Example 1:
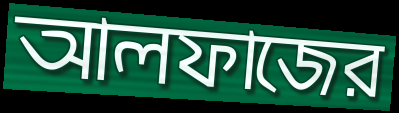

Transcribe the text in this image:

আলফাজের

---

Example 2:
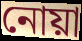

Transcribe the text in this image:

নোয়া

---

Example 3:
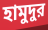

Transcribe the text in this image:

হামুদুর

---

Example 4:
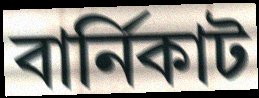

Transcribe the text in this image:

বার্নিকাট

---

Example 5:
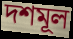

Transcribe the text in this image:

দশমূল